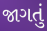
જાગતું